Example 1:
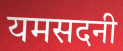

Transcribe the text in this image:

यमसदनी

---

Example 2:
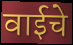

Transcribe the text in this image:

वाईचे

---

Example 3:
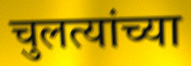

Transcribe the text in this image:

चुलत्यांच्या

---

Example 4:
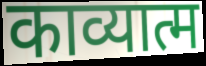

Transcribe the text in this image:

काव्यात्म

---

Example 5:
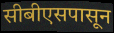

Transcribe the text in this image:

सीबीएसपासून